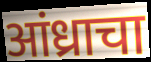
आंध्राचा